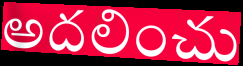
అదలించు